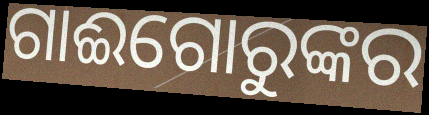
ଗାଈଗୋରୁଙ୍କର